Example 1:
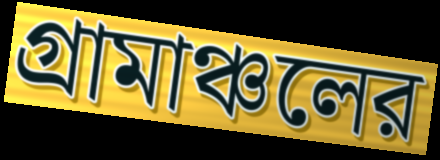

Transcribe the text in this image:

গ্রামাঞ্চলের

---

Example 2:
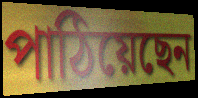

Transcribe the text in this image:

পাঠিয়েছেন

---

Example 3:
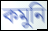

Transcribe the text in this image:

কমুনি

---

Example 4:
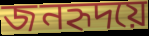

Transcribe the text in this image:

জনহৃদয়ে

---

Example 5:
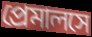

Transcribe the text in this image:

প্রেমালসে